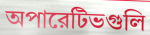
অপারেটিভগুলি